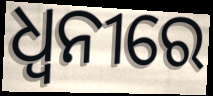
ଧ୍ଵନୀରେ